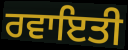
ਰਵਾਇਤੀ